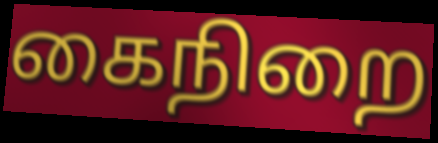
கைநிறை